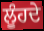
ਲੂੰਹਦੇ